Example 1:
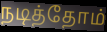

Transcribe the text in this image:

நடித்தோம்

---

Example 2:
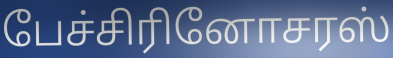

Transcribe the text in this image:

பேச்சிரினோசரஸ்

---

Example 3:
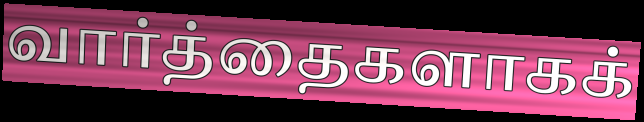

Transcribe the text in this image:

வார்த்தைகளாகக்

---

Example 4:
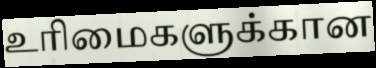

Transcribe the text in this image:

உரிமைகளுக்கான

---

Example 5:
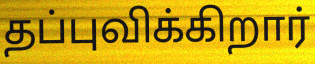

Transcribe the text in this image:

தப்புவிக்கிறார்